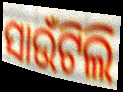
ସାଉଁଟିଲି